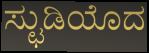
ಸ್ಟುಡಿಯೊದ